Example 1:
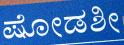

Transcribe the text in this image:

ಷೋಡಶೀ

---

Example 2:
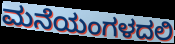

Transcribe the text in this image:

ಮನೆಯಂಗಳದಲಿ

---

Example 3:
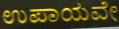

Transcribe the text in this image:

ಉಪಾಯವೇ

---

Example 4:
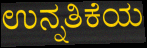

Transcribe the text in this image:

ಉನ್ನತಿಕೆಯ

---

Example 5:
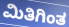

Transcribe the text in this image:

ಮಿತಿಗಿಂತ